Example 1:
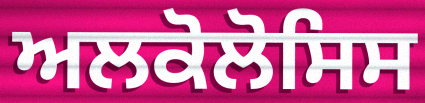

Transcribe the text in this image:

ਅਲਕੋਲੋਸਿਸ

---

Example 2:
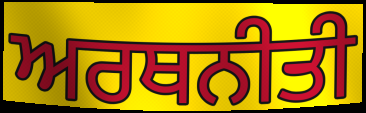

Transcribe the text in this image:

ਅਰਥਨੀਤੀ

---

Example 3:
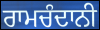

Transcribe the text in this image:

ਰਾਮਚੰਦਾਨੀ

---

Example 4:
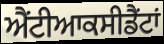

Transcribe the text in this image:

ਐਂਟੀਆਕਸੀਡੈਂਟਾਂ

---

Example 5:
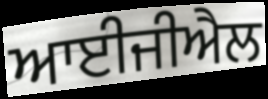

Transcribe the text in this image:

ਆਈਜੀਐਲ